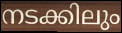
നടക്കിലും